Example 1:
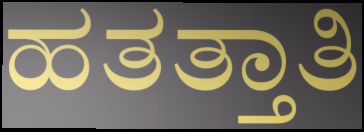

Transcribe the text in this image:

ಹತತ್ತಾತಿ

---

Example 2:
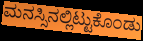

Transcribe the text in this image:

ಮನಸ್ಸಿನಲ್ಲಿಟ್ಟುಕೊಂಡು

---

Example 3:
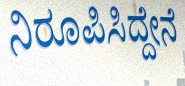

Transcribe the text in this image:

ನಿರೂಪಿಸಿದ್ದೇನೆ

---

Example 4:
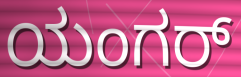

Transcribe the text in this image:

ಯಂಗರ್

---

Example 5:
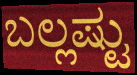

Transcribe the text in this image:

ಬಲ್ಲಷ್ಟು